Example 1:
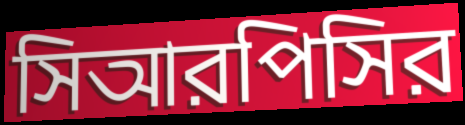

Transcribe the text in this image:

সিআরপিসির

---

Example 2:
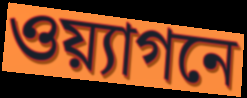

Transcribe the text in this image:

ওয়্যাগনে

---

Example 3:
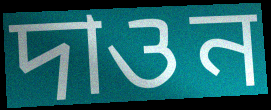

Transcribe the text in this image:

দাওন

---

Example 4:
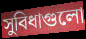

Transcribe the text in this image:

সুবিধাগুলো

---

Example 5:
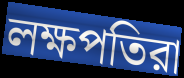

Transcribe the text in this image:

লক্ষপতিরা